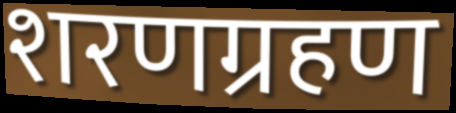
शरणग्रहण